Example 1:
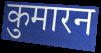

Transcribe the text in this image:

कुमारन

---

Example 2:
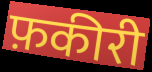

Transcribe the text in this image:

फ़कीरी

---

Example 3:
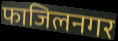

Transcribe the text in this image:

फाजिलनगर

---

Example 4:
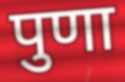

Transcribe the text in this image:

पुणा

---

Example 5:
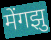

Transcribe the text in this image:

मेंगझु